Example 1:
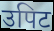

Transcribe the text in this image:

उपिट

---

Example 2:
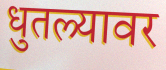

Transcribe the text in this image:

धुतल्यावर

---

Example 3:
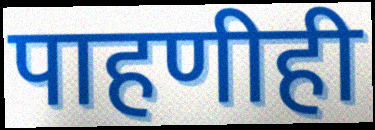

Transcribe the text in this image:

पाहणीही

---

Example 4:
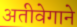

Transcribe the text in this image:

अतीवेगाने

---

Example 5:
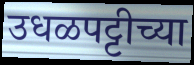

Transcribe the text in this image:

उधळपट्टीच्या